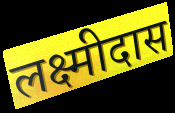
लक्ष्मीदास